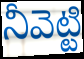
నీవెట్టి